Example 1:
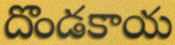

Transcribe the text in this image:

దొండకాయ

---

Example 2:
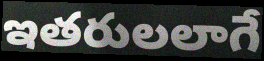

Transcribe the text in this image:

ఇతరులలాగే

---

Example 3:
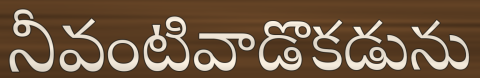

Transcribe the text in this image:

నీవంటివాడొకడును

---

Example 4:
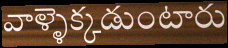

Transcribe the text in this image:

వాళ్ళెక్కడుంటారు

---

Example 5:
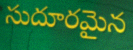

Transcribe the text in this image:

సుదూరమైన